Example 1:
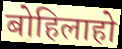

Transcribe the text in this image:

बोहिलाहो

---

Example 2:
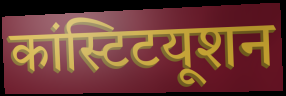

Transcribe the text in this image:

कांस्टिटयूशन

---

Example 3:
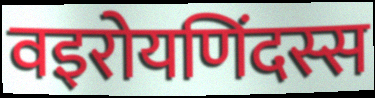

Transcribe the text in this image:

वइरोयणिंदस्स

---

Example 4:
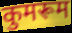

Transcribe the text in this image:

कुमरूम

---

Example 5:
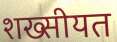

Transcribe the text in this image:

शख्सीयत